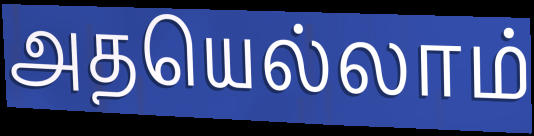
அதயெல்லாம்